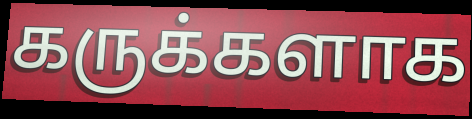
கருக்களாக